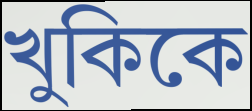
খুকিকে